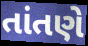
તાંતણે